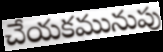
చేయకమునుపు